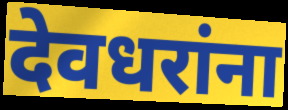
देवधरांना